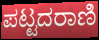
ಪಟ್ಟದರಾಣಿ